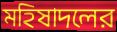
মহিষাদলের